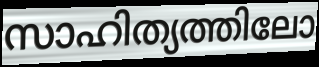
സാഹിത്യത്തിലോ